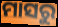
ମାସରୁ